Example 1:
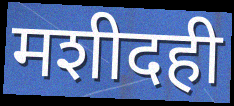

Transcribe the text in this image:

मशीदही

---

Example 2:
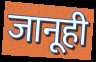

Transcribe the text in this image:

जानूही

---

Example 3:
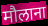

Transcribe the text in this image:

मौलाना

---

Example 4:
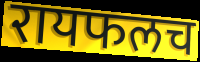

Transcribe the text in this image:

रायफलच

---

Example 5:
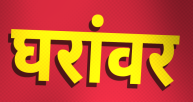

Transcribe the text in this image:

घरांवर